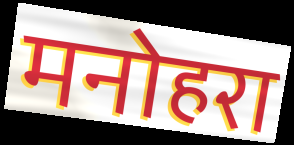
मनोहरा